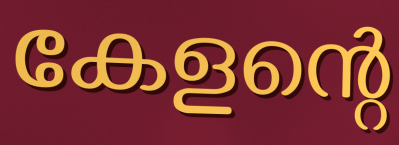
കേളന്റെ